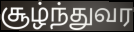
சூழ்ந்துவர